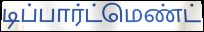
டிப்பார்ட்மெண்ட்